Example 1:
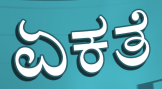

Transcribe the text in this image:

ಏಕತೆ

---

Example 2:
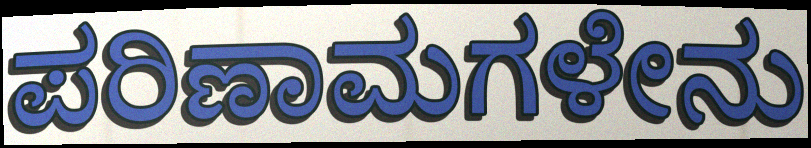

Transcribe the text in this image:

ಪರಿಣಾಮಗಳೇನು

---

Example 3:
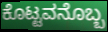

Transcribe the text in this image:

ಕೊಟ್ಟವನೊಬ್ಬ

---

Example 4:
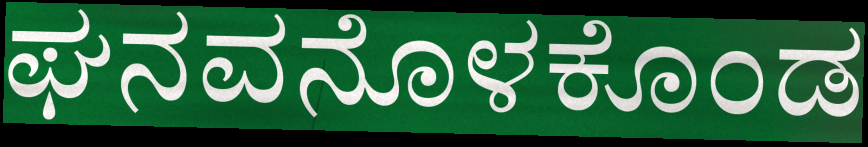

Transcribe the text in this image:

ಘನವನೊಳಕೊಂಡ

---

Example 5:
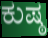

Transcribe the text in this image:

ಕುಷ್ಠ